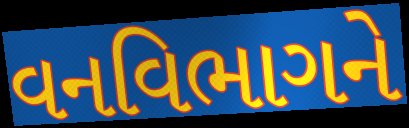
વનવિભાગને